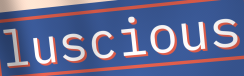
luscious